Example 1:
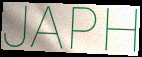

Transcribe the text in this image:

JAPH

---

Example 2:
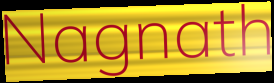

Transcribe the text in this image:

Nagnath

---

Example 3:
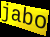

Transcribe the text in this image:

jabo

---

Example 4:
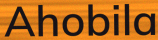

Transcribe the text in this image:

Ahobila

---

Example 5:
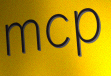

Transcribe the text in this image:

mcp